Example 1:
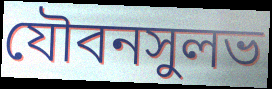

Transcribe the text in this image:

যৌবনসুলভ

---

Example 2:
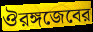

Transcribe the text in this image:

ঔরঙ্গজেবের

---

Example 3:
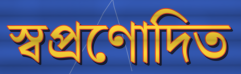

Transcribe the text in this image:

স্বপ্রণোদিত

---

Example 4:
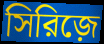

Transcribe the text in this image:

সিরিজ়ে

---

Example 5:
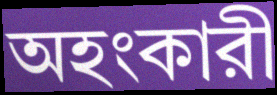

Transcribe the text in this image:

অহংকারী